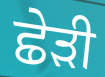
ਛੇੜੀ